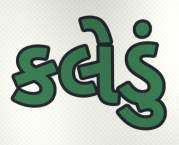
કલેડું